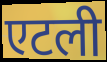
एटली